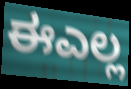
ಈಎಲ್ಲ